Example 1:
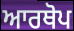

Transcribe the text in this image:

ਆਰਥੋਪ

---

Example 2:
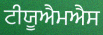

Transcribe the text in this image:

ਟੀਯੂਐਮਐਸ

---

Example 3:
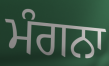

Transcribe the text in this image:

ਮੰਗਨਾ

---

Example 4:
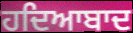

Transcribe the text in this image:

ਹਦਿਆਬਾਦ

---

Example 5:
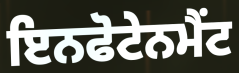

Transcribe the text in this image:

ਇਨਫੋਟੇਨਮੈਂਟ